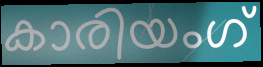
കാരിയംഗ്